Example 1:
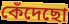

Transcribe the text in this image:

কেঁদেছো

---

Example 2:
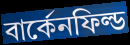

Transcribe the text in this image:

বার্কেনফিল্ড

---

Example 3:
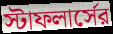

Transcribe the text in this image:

স্টাফলার্সের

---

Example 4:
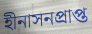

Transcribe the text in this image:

হীনাসনপ্রাপ্ত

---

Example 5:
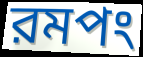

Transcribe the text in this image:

রমপং